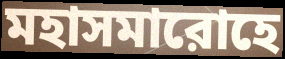
মহাসমারোহে